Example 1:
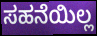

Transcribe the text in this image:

ಸಹನೆಯಿಲ್ಲ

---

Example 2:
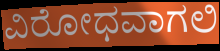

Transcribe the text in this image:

ವಿರೋಧವಾಗಲಿ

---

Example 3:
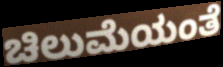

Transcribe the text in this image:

ಚಿಲುಮೆಯಂತೆ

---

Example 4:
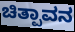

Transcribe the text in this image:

ಚಿತ್ಪಾವನ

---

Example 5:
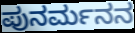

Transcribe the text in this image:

ಪುನರ್ಮನನ